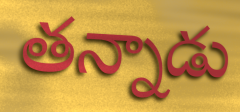
తన్నాడు